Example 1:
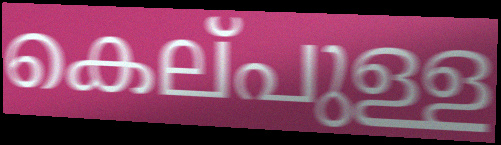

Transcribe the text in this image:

കെല്‌പുള്ള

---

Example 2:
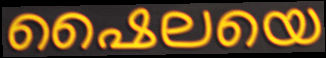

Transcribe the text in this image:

ഷൈലയെ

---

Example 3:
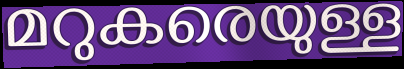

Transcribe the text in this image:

മറുകരെയുള്ള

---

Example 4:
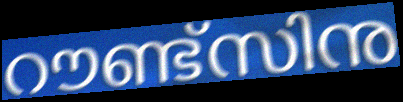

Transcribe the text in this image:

റൗണ്ട്സിനു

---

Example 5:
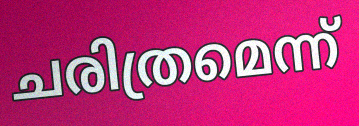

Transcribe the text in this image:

ചരിത്രമെന്ന്